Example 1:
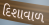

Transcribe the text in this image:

દિશાવાળ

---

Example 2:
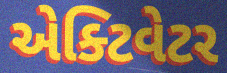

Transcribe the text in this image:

એક્ટિવેટર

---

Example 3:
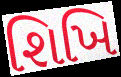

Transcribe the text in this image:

શિખિ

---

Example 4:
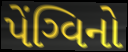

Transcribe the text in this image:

પેંગ્વિનો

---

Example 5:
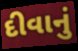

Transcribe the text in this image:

દીવાનું